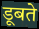
डूबते